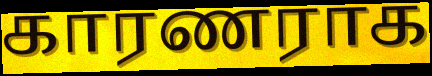
காரணராக